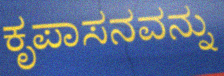
ಕೃಪಾಸನವನ್ನು